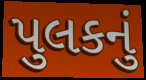
પુલકનું